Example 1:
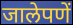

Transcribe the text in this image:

जालेपणें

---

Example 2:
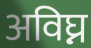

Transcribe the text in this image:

अविघ्न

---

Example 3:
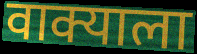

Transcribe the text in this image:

वाक्याला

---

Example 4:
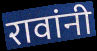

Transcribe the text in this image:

रावांनी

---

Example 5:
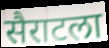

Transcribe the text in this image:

सैराटला